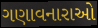
ગણાવનારાઓ